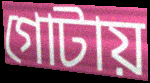
গোটায়